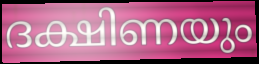
ദക്ഷിണയും